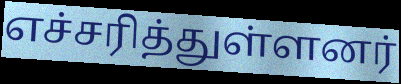
எச்சரித்துள்ளனர்